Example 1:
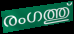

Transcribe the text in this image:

രംഗത്തു്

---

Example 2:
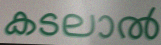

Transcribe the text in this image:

കടലാൽ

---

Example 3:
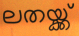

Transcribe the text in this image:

ലതയ്ക്ക്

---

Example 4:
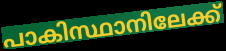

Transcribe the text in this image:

പാകിസ്ഥാനിലേക്ക്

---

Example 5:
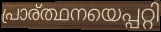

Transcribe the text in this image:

പ്രാര്ത്ഥനയെപ്പറ്റി